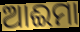
ଆଈମା